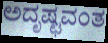
ಅದೃಷ್ಟವಂತ